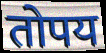
तोपय